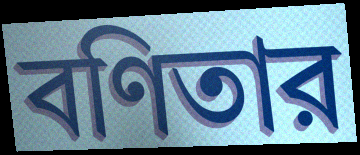
বণিতার